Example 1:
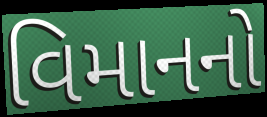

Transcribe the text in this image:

વિમાનનો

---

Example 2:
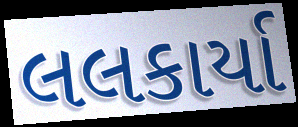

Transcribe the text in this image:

લલકાર્યા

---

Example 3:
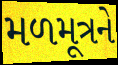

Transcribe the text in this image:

મળમૂત્રને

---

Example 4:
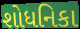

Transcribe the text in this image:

શોધનિકા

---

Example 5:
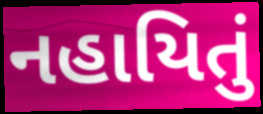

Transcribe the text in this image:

નહાયિતું